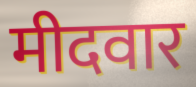
मीदवार